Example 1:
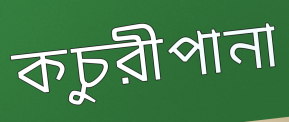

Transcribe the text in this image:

কচুরীপানা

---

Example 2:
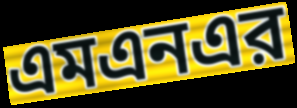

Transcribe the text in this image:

এমএনএর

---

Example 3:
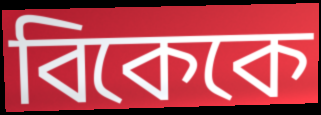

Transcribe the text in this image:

বিকেকে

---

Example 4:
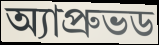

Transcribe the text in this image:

অ্যাপ্রুভড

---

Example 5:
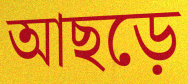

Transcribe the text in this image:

আছড়ে